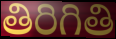
తిరిగితి